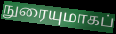
நுரையுமாகப்